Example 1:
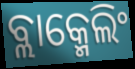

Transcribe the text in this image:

ବ୍ଲାକ୍ମେଲିଂ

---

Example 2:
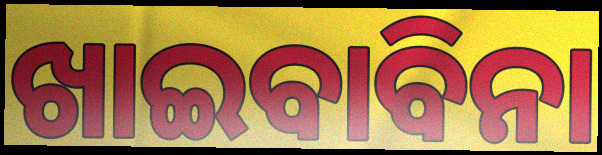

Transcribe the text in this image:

ଖାଇବାବିନା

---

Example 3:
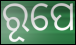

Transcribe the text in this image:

ରୂପେ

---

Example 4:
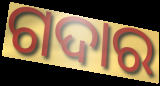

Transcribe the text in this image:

ଗଦାର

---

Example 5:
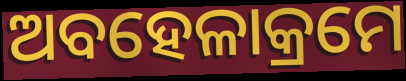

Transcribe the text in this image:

ଅବହେଳାକ୍ରମେ